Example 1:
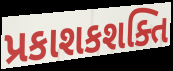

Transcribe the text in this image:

પ્રકાશકશક્તિ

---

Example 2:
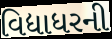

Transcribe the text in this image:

વિદ્યાધરની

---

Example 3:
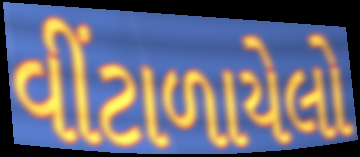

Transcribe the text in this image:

વીંટાળાયેલો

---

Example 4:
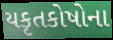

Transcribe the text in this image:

યકૃતકોષોના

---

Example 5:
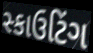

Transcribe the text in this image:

સ્કાઉટિંગ